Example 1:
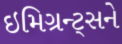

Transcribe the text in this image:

ઇમિગ્રન્ટ્સને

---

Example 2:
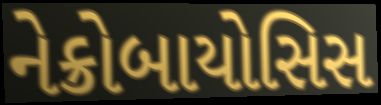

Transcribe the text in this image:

નેક્રોબાયોસિસ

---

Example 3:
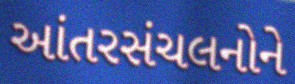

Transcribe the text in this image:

આંતરસંચલનોને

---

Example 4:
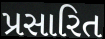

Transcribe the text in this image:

પ્રસારિત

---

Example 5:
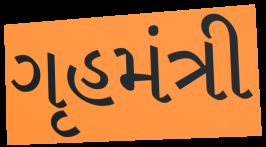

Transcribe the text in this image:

ગૃહમંત્રી